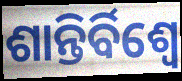
ଶାନ୍ତିର୍ବିଶ୍ୱେ